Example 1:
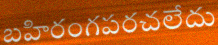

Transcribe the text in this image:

బహిరంగపరచలేదు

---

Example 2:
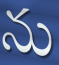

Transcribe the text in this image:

ను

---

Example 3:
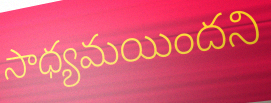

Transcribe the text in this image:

సాధ్యమయిందని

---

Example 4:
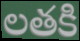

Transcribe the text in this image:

లతకి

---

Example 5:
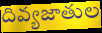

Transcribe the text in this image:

దివ్యజాతుల